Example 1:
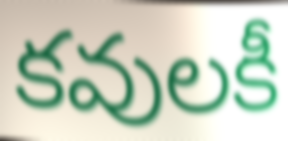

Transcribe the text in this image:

కవులకీ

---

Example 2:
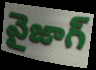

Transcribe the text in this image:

వైజాగ్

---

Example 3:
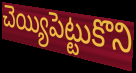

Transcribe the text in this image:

చెయ్యిపెట్టుకొని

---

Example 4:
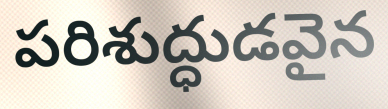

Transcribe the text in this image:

పరిశుద్ధుడవైన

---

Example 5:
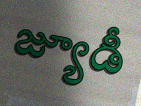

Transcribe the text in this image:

జ్యూడీ